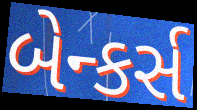
બેન્કર્સ